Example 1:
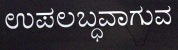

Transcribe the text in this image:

ಉಪಲಬ್ಧವಾಗುವ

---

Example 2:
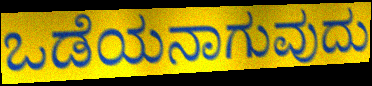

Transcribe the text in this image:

ಒಡೆಯನಾಗುವುದು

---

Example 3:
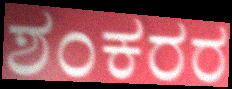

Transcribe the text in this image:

ಶಂಕರರ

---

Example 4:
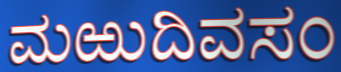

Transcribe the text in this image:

ಮಱುದಿವಸಂ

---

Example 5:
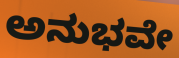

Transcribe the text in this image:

ಅನುಭವೇ